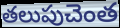
తలుపుచెంత